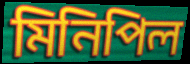
মিনিপিল